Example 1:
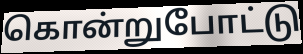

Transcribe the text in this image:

கொன்றுபோட்டு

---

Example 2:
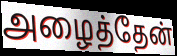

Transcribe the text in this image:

அழைத்தேன்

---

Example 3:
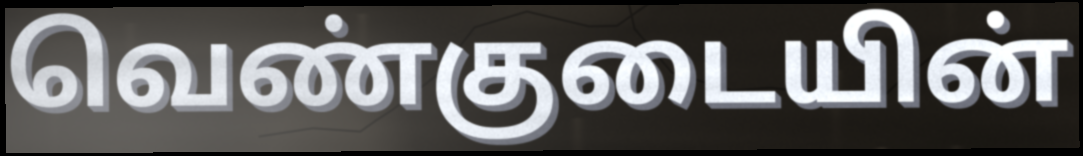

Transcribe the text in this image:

வெண்குடையின்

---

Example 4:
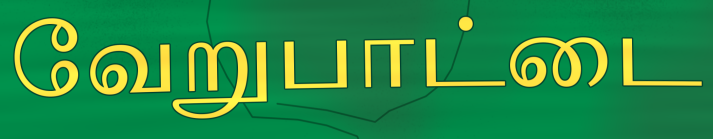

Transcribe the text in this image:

வேறுபாட்டை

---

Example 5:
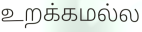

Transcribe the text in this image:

உறக்கமல்ல